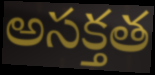
అసక్తత